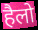
हैलो